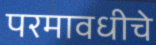
परमावधीचे